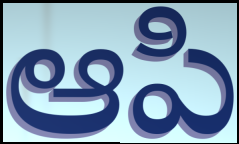
ఆపి